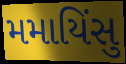
મમાયિંસુ